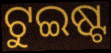
ଟୁଇଷ୍ଟ